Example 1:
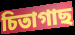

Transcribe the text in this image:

চিতাগাছ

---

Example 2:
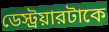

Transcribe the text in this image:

ডেস্ট্রয়ারটাকে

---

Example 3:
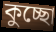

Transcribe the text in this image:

কুচ্ছো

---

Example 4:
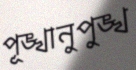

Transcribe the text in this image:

পূঙ্খানুপুঙ্খ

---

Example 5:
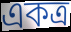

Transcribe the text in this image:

একত্র